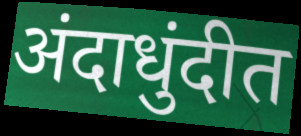
अंदाधुंदीत